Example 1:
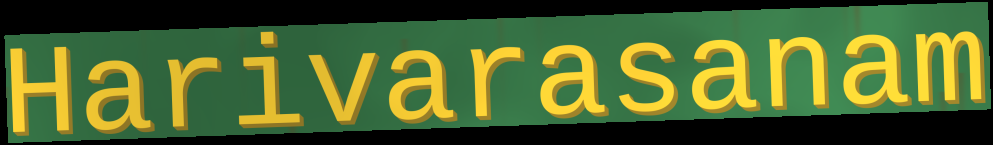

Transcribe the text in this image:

Harivarasanam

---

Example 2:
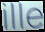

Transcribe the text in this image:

ille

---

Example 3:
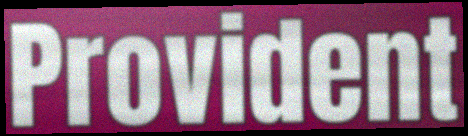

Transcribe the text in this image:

Provident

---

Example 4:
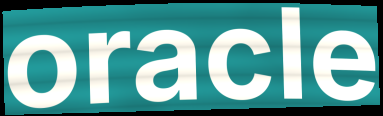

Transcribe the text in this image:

oracle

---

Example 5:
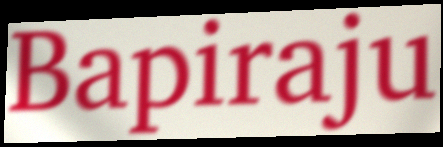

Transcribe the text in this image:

Bapiraju